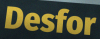
Desfor